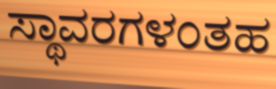
ಸ್ಥಾವರಗಳಂತಹ